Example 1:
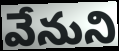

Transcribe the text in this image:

వేనుని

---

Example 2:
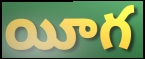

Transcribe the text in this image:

యీగ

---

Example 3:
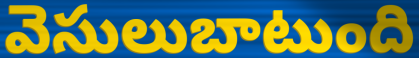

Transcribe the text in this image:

వెసులుబాటుంది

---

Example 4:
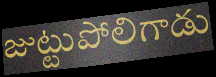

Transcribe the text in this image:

జుట్టుపోలిగాడు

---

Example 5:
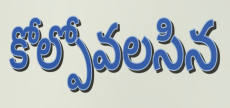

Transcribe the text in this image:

కోల్పోవలసిన